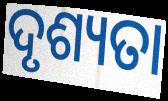
ଦୃଶ୍ୟତା